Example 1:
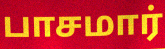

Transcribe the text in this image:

பாசமார்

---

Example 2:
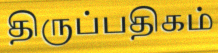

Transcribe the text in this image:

திருப்பதிகம்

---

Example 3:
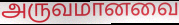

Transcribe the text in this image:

அருவமானவை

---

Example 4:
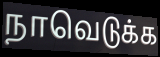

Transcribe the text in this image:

நாவெடுக்க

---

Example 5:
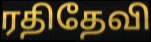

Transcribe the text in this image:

ரதிதேவி